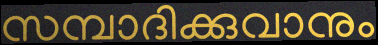
സമ്പാദിക്കുവാനും